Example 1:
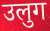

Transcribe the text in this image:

उलुग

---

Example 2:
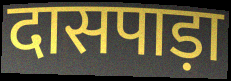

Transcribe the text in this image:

दासपाड़ा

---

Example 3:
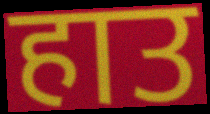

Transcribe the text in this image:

हाउ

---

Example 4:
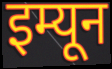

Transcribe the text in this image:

इम्यून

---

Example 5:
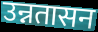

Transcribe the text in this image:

उन्नतासन